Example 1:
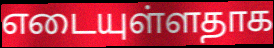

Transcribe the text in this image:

எடையுள்ளதாக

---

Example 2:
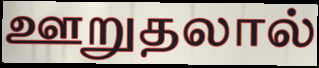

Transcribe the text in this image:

ஊறுதலால்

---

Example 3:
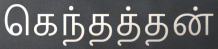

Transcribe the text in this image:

கெந்தத்தன்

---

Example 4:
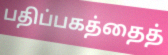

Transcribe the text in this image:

பதிப்பகத்தைத்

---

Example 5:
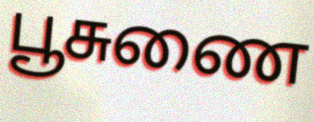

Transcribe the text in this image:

பூசுணை